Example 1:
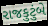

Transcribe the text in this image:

રાજકુટુંબે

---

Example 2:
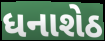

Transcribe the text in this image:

ધનાશેઠ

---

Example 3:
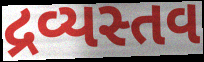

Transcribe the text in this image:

દ્રવ્યસ્તવ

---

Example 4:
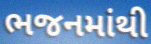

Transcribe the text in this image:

ભજનમાંથી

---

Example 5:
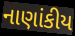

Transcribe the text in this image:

નાણાંકીય